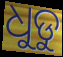
ଧୁଡୁ